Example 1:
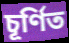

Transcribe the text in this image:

চূর্ণিত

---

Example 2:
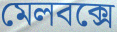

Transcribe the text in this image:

মেলবক্সে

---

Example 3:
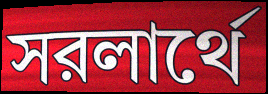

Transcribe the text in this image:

সরলার্থে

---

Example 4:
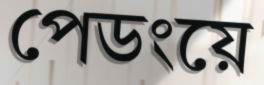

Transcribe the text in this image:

পেডংয়ে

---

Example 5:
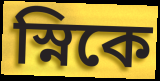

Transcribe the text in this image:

স্নিকে